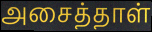
அசைத்தாள்